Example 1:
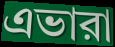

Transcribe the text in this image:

এভারা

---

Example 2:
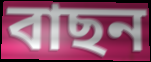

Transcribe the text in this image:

বাছন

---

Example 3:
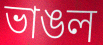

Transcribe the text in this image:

ভাঙল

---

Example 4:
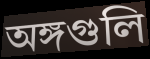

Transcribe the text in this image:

অঙ্গগুলি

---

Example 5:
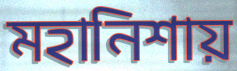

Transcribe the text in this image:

মহানিশায়